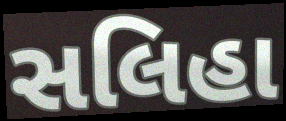
સલિહા